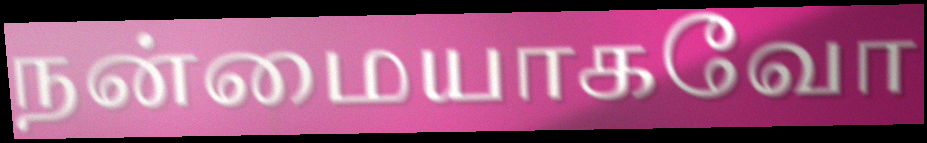
நன்மையாகவோ